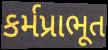
કર્મપ્રાભૂત